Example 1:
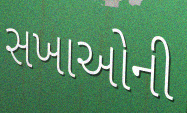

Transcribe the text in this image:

સખાઓની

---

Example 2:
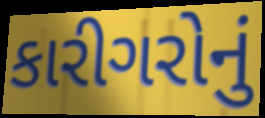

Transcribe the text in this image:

કારીગરોનું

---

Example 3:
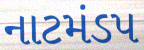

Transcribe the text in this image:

નાટમંડપ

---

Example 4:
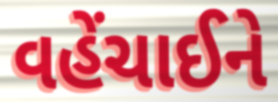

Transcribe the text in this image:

વહેંચાઈને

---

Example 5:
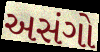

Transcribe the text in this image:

અસંગો